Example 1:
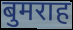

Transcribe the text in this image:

बुमराह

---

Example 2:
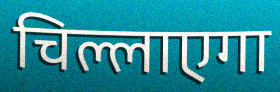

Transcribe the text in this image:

चिल्लाएगा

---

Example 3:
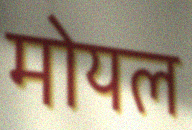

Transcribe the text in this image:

मोयल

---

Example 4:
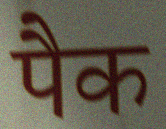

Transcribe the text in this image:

पैक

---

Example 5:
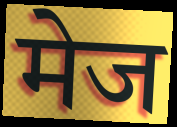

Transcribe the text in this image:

मेज